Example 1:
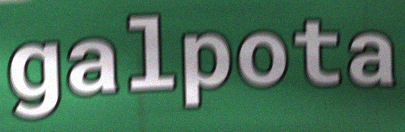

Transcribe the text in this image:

galpota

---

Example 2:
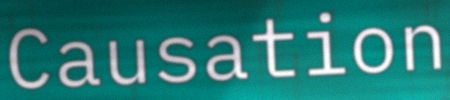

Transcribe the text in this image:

Causation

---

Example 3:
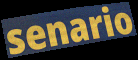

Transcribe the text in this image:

senario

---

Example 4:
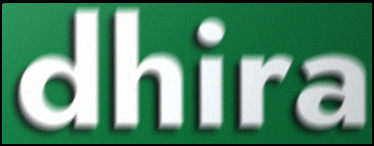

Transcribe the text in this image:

dhira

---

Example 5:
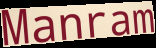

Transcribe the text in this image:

Manram